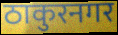
ठाकुरनगर